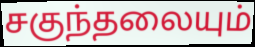
சகுந்தலையும்